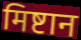
मिष्टान